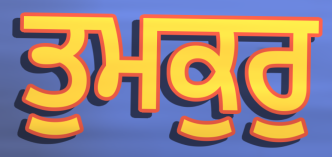
ਤੁਮਕੁਰੁ